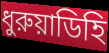
ধুরুয়াডিহি